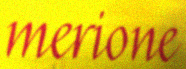
merione